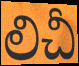
లిచీ